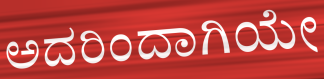
ಅದರಿಂದಾಗಿಯೇ